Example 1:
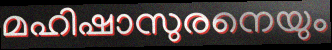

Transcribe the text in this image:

മഹിഷാസുരനെയും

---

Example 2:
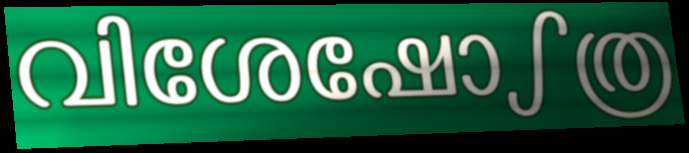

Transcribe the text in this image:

വിശേഷോഽത്ര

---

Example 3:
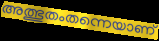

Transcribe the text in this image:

അത്ഭുതംതന്നെയാണ്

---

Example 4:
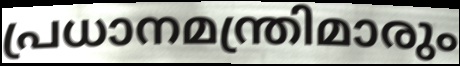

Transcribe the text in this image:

പ്രധാനമന്ത്രിമാരും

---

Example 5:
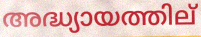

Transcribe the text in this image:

അദ്ധ്യായത്തില്